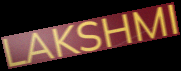
LAKSHMI